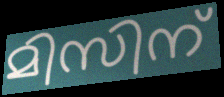
മിസിന്